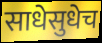
साधेसुधेच